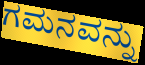
ಗಮನವನ್ನು